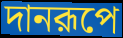
দানরূপে